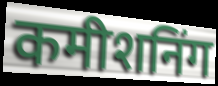
कमीशनिंग